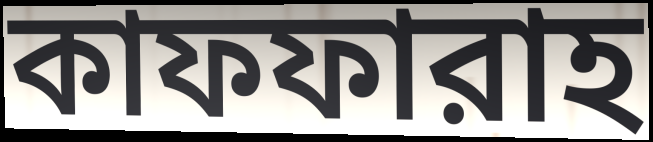
কাফফারাহ